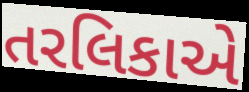
તરલિકાએ